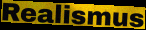
Realismus